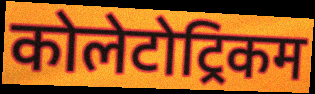
कोलेटोट्रिकम